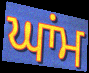
ਘਾਂਮ